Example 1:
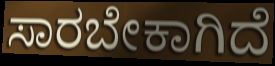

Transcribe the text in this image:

ಸಾರಬೇಕಾಗಿದೆ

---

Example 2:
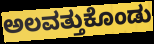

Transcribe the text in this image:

ಅಲವತ್ತುಕೊಂಡು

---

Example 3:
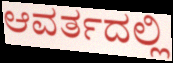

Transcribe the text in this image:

ಆವರ್ತದಲ್ಲಿ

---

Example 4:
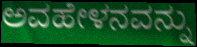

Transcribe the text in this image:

ಅವಹೇಳನವನ್ನು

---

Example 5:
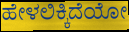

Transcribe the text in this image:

ಹೇಳಲಿಕ್ಕಿದೆಯೋ